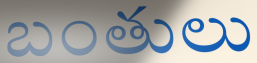
బంతులు